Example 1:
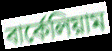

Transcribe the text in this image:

বার্কেলিয়াম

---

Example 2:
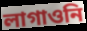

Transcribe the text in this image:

লাগাওনি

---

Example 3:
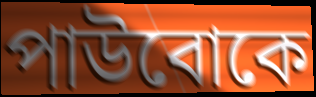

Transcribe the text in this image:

পাউবোকে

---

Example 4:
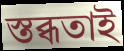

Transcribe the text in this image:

স্তব্ধতাই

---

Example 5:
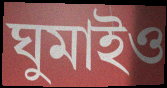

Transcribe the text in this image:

ঘুমাইও